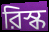
রিস্ক